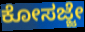
ಕೋಸಜ್ಜೇ